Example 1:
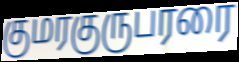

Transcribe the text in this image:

குமரகுருபரரை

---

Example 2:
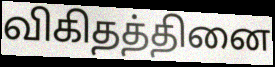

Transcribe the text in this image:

விகிதத்தினை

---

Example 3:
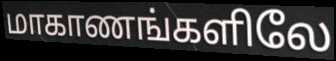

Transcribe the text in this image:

மாகாணங்களிலே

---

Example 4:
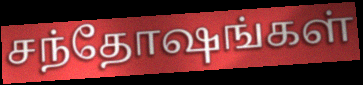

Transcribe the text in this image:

சந்தோஷங்கள்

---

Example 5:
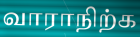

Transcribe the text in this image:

வாராநிற்க